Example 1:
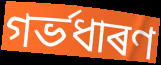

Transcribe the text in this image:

গৰ্ভধাৰণ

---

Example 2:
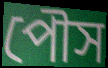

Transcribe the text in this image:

পৌস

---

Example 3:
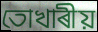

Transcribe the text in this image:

তোখাৰীয়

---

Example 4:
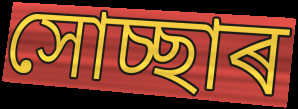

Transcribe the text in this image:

সোচ্ছাৰ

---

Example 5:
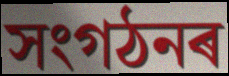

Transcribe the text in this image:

সংগঠনৰ